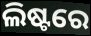
ଲିଷ୍ଟରେ